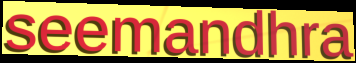
seemandhra